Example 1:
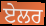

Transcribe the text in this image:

ਏਲਰ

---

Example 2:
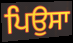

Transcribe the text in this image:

ਪਿਉਸਾ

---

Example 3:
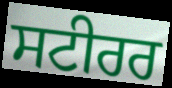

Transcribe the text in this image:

ਸਟੀਰਰ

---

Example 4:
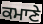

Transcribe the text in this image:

ਕਮਾਣੇ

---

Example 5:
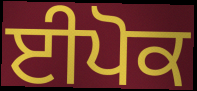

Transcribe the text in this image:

ਈਪੋਕ